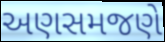
અણસમજણે